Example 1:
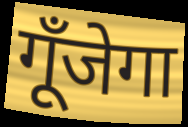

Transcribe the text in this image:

गूँजेगा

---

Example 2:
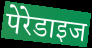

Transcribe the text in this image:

पेरेडाइज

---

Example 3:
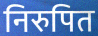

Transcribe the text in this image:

निरुपित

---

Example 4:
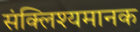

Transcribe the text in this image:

संक्लिश्यमानक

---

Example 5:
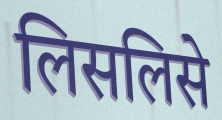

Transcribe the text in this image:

लिसलिसे